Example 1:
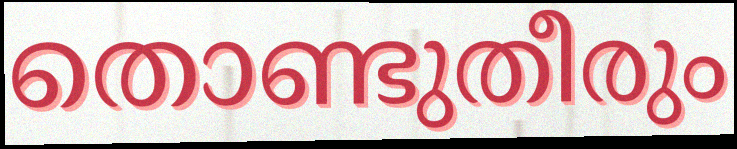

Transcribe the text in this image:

തൊണ്ടുതീരും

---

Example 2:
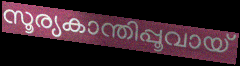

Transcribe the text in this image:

സൂര്യകാന്തിപ്പൂവായ്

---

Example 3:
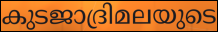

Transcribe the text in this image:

കുടജാദ്രിമലയുടെ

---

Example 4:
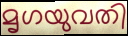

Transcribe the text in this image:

മൃഗയുവതി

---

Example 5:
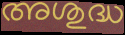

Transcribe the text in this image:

അശുദ്ധ